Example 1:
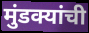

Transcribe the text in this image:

मुंडक्यांची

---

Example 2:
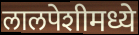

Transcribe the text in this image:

लालपेशीमध्ये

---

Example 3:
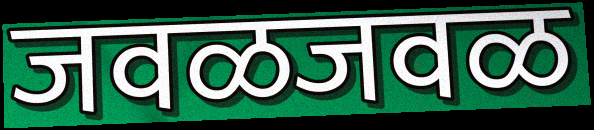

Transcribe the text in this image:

जवळजवळ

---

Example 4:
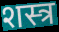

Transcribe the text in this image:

शस्त्र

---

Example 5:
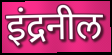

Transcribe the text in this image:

इंद्रनील